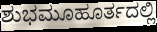
ಶುಭಮೂಹೂರ್ತದಲ್ಲಿ